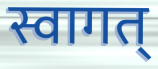
स्वागत्